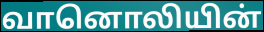
வானொலியின்